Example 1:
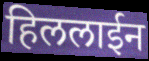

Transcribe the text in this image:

हिललाईन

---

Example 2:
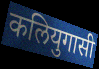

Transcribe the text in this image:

कलियुगासी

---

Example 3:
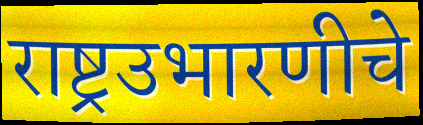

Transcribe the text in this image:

राष्ट्रउभारणीचे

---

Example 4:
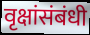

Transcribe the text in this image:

वृक्षांसंबंधी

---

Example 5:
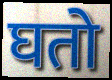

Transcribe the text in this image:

घतो